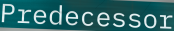
Predecessor